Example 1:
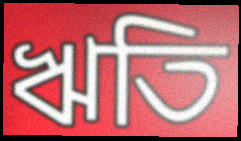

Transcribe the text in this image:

ঋতি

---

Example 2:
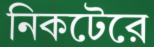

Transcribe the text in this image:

নিকটেরে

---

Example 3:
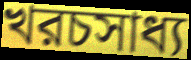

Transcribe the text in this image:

খরচসাধ্য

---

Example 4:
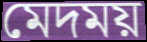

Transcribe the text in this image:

মেদময়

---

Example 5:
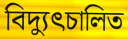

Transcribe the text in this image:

বিদ্যুৎচালিত